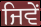
ਜਿਵੇੰ